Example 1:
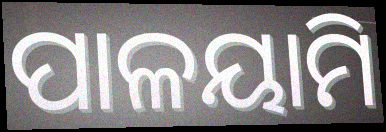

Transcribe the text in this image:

ପାଳୟାମି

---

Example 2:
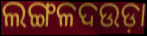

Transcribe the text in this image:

ଲଙ୍ଗଳଦଉଡ଼ା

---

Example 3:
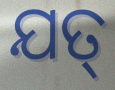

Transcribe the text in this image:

ଯତ୍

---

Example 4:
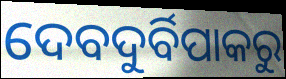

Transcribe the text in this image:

ଦେବଦୁର୍ବିପାକରୁ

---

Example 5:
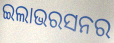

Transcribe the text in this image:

ଇଲାଭରସନର